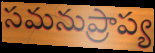
సమనుప్రాప్య